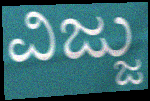
ವಿಜ್ಜು